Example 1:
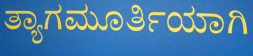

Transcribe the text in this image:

ತ್ಯಾಗಮೂರ್ತಿಯಾಗಿ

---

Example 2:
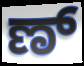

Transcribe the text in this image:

ಣ್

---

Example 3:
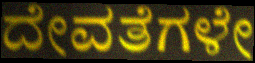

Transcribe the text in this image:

ದೇವತೆಗಳೇ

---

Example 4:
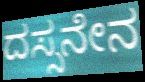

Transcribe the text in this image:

ದಸ್ಸನೇನ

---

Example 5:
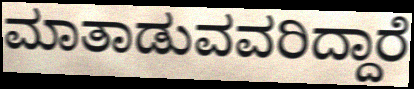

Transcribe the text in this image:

ಮಾತಾಡುವವರಿದ್ದಾರೆ